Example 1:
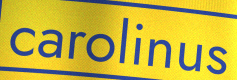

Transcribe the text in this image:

carolinus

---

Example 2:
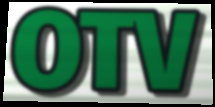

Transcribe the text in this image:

OTV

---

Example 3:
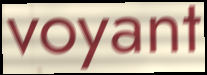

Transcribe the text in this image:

voyant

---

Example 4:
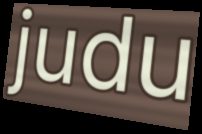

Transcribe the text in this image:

judu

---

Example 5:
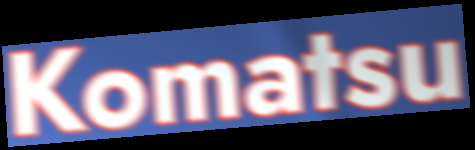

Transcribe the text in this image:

Komatsu